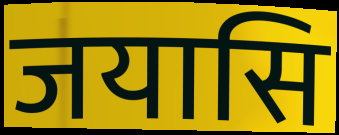
जयासि